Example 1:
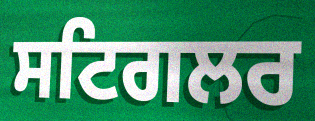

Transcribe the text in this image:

ਸਟਿਗਲਰ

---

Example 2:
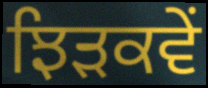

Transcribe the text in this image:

ਝਿੜਕਵੇਂ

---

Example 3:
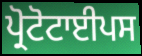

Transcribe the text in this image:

ਪ੍ਰੋਟੋਟਾਈਪਸ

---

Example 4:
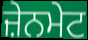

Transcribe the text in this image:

ਜ਼ੇਨਮੇਟ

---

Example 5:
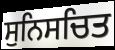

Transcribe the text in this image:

ਸੁਨਿਸਚਿਤ